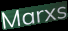
Marxs